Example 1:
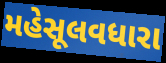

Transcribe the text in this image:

મહેસૂલવધારા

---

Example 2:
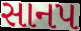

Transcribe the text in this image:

સાનપ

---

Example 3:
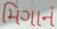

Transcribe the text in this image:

મિગાનં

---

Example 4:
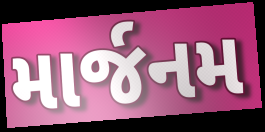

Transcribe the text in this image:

માર્જનમ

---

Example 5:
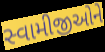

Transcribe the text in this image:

સ્વામીજીઓને